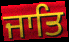
ਜਾਤਿ